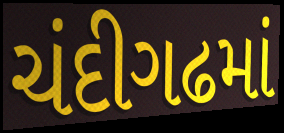
ચંદીગઢમાં